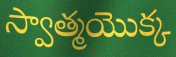
స్వాత్మయొక్క